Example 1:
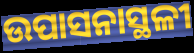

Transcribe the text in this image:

ଉପାସନାସ୍ଥଳୀ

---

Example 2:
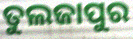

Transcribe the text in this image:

ତୁଲଜାପୁର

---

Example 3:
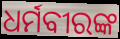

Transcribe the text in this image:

ଧର୍ମବୀରଙ୍କ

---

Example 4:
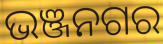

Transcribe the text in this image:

ଭଞ୍ଜନଗର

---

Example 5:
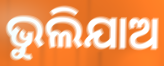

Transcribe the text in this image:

ଭୁଲିଯାଅ